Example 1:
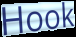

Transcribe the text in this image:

Hook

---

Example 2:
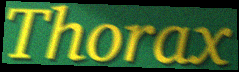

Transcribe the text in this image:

Thorax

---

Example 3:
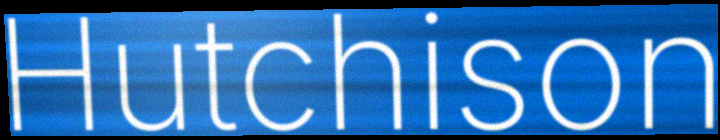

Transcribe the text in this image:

Hutchison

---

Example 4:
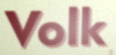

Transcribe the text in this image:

Volk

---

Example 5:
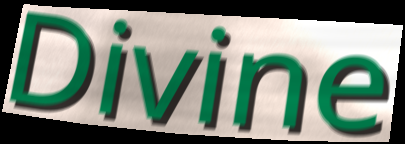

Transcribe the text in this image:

Divine